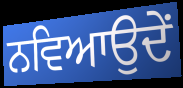
ਨਵਿਆਉਦੇਂ